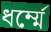
ধর্ম্মে